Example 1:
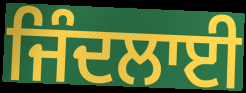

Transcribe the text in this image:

ਜਿੰਦਲਾਈ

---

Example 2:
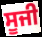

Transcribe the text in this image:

ਸੂਜੀ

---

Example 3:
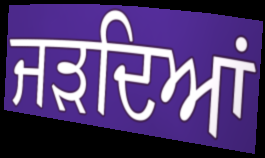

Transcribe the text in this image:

ਜੜਦਿਆਂ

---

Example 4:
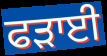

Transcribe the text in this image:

ਫੜਾਈ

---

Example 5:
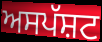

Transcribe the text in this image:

ਅਸਪੱਸ਼ਟ